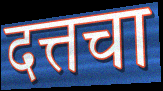
दत्तचा